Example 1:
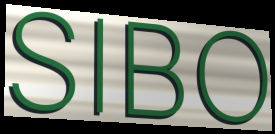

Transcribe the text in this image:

SIBO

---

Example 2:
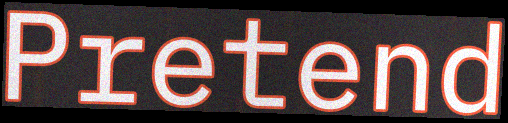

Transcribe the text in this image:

Pretend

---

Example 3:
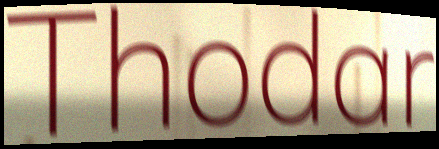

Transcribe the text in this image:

Thodar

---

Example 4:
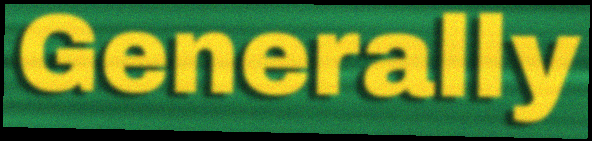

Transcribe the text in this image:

Generally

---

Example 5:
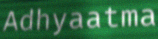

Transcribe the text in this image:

Adhyaatma